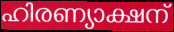
ഹിരണ്യാക്ഷന്